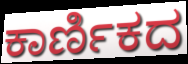
ಕಾರ್ಣಿಕದ